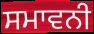
ਸਮਾਵਨੀ